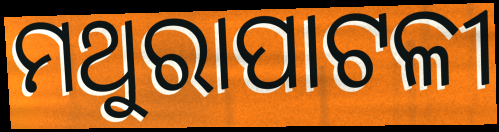
ମଥୁରାପାଟଳୀ